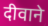
दीवाने